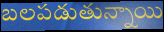
బలపడుతున్నాయి